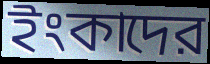
ইংকাদের